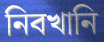
নিবখানি